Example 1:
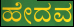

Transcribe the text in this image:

ಹೇದವ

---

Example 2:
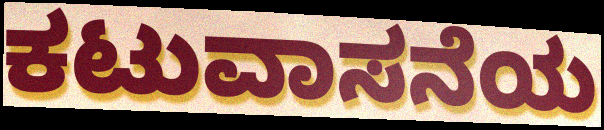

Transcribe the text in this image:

ಕಟುವಾಸನೆಯ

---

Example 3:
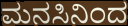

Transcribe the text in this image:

ಮನಸಿನಿಂದ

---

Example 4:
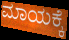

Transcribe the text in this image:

ಮಾಯಕ್ಕೆ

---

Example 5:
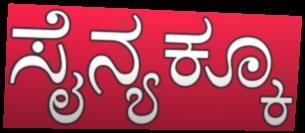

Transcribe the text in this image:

ಸೈನ್ಯಕ್ಕೂ